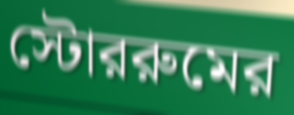
স্টোররুমের